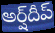
అర్ష్‌దీప్